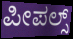
ಪೀಪಲ್ಸ್